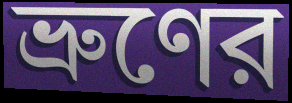
ভ্রুণের